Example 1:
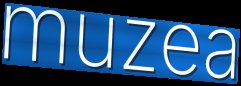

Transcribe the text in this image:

muzea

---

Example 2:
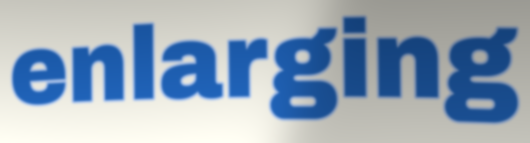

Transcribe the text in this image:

enlarging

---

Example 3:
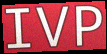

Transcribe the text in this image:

IVP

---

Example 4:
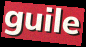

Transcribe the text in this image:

guile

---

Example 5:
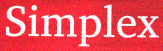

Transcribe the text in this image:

Simplex